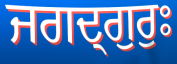
ਜਗਦ੍ਗੁਰੁਃ